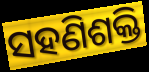
ସହଣିଶକ୍ତି